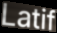
Latif